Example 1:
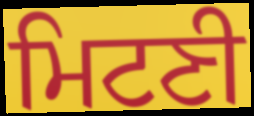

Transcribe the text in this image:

ਮਿਟਣੀ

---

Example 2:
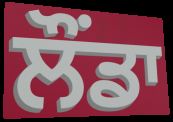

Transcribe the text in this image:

ਲੌਂਡਾ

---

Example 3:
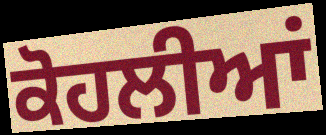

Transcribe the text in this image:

ਕੋਹਲੀਆਂ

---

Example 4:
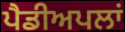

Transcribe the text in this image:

ਪੈਡੀਅਪਲਾਂ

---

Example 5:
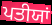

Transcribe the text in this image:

ਪਤੀਯਾਂ